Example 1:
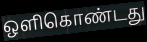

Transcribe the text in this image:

ஒளிகொண்டது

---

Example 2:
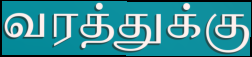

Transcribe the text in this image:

வரத்துக்கு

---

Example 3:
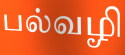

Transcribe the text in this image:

பல்வழி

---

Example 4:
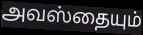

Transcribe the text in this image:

அவஸ்தையும்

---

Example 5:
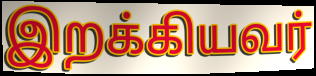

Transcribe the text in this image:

இறக்கியவர்